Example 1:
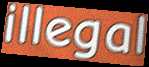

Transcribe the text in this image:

illegal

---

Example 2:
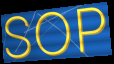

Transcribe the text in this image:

SOP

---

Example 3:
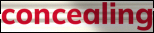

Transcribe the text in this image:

concealing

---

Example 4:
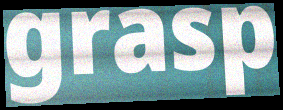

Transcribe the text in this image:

grasp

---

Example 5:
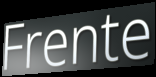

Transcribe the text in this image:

Frente